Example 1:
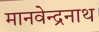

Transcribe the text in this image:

मानवेन्द्रनाथ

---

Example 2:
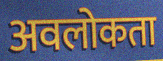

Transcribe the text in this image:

अवलोकता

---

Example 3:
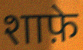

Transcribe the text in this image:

शाफ़े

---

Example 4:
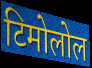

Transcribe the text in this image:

टिमोलोल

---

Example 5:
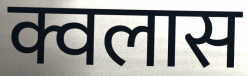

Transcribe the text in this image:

क्वलास